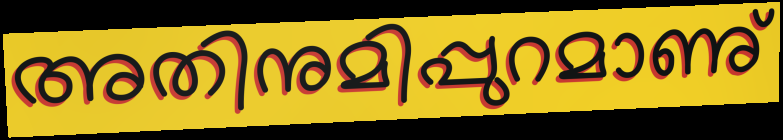
അതിനുമിപ്പുറമാണു്